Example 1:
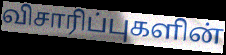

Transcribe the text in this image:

விசாரிப்புகளின்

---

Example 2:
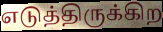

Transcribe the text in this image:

எடுத்திருக்கிற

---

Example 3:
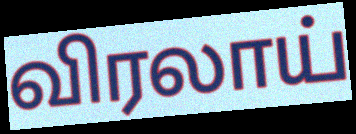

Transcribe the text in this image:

விரலாய்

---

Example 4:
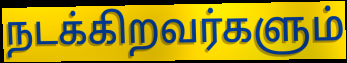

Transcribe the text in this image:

நடக்கிறவர்களும்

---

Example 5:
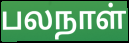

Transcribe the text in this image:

பலநாள்